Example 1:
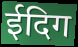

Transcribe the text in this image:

ईदिग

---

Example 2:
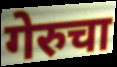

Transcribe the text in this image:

गेरुचा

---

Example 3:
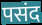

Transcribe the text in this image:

पसंद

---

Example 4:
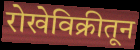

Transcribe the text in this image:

रोखेविक्रीतून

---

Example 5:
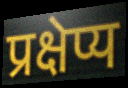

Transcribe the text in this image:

प्रक्षेप्य